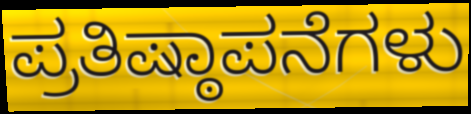
ಪ್ರತಿಷ್ಠಾಪನೆಗಳು